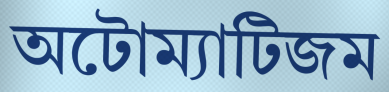
অটোম্যাটিজম